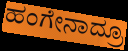
ಹಂಗೇನಾದ್ರೂ